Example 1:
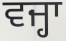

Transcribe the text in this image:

ਵਜ੍ਹਾ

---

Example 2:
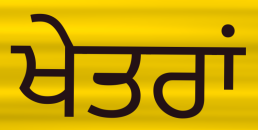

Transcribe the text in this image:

ਖੇਤਰਾਂ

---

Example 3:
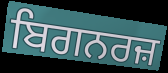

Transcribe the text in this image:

ਬਿਗਨਰਜ਼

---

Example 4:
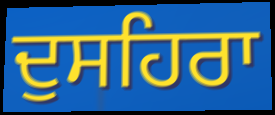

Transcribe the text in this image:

ਦੁਸਹਿਰਾ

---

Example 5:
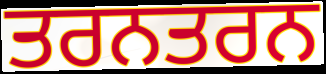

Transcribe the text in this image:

ਤਰਨਤਰਨ